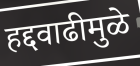
हद्दवाढीमुळे